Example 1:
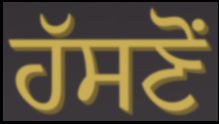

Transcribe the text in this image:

ਹੱਸਣੋਂ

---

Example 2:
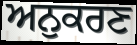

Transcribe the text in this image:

ਅਨੁਕਰਣ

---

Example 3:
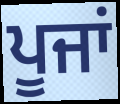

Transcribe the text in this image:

ਪੂਜਾਂ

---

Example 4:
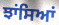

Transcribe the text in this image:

ਝਾਂਸਿਆਂ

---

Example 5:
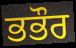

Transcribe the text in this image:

ਭਭੌਰ